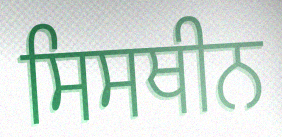
ਸਿਸਥੀਨ